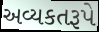
અવ્યકતરૂપે